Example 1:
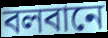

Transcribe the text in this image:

বলবানে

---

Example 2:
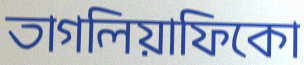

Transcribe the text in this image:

তাগলিয়াফিকো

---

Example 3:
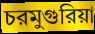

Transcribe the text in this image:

চরমুগুরিয়া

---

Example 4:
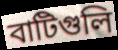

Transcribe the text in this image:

বাটিগুলি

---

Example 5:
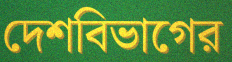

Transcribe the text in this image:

দেশবিভাগের